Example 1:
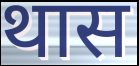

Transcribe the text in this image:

थास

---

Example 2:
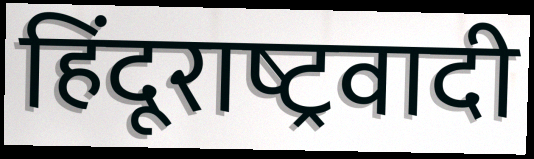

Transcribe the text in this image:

हिंदूराष्ट्रवादी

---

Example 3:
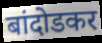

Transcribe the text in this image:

बांदोडकर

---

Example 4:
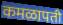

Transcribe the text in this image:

कमळापती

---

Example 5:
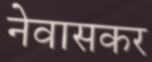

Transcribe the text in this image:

नेवासकर